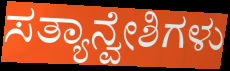
ಸತ್ಯಾನ್ವೇಶಿಗಳು